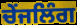
ਚੇਂਜਲਿੰਗ